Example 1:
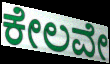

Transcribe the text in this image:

ಕೇಲವೇ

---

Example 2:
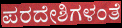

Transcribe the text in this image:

ಪರದೇಶಿಗಳಂತೆ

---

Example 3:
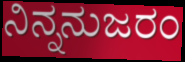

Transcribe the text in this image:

ನಿನ್ನನುಜರಂ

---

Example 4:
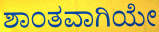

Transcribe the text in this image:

ಶಾಂತವಾಗಿಯೇ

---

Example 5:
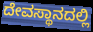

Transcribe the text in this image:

ದೇವಸ್ಥಾನದಲ್ಲಿ